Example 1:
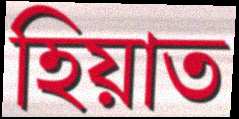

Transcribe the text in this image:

হিয়াত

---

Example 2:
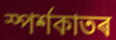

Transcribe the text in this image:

স্পৰ্শকাতৰ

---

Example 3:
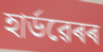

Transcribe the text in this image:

হাৰ্ডৱেৰৰ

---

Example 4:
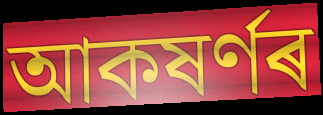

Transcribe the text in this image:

আকষৰ্ণৰ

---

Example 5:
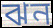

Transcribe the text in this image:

ঝন